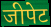
जीपेट